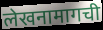
लेखनामागची